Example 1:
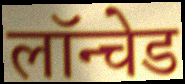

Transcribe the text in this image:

लॉन्चेड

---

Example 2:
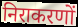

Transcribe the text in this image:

निराकरणों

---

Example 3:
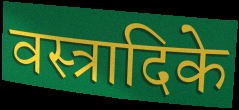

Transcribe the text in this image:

वस्त्रादिके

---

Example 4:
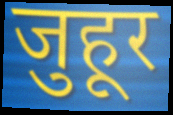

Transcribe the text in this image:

जुहूर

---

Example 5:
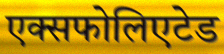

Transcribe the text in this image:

एक्सफोलिएटेड